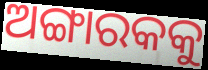
ଅଙ୍ଗାରକକୁ